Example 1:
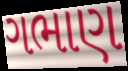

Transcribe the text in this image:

ગભાણ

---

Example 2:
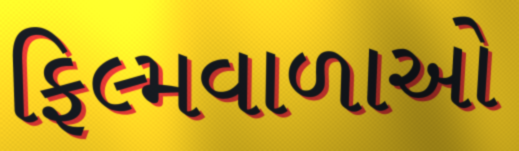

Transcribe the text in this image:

ફિલ્મવાળાઓ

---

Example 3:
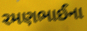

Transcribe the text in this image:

રમણભાઈના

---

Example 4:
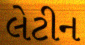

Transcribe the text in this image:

લેટીન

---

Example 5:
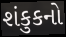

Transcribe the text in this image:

શંકુકનો